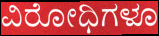
ವಿರೋಧಿಗಳೂ